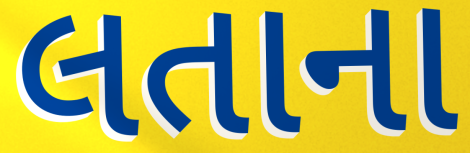
લતાના